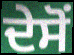
ਦੇਸੋਂ